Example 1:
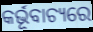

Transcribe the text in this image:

କର୍ଭୂବାଚ୍ୟରେ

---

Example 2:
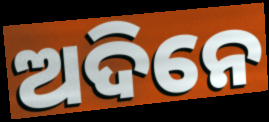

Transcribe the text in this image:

ଅଦିନେ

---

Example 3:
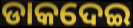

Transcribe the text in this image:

ଡାକଦେଇ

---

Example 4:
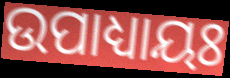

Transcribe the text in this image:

ଉପାଧ୍ୟାୟଃ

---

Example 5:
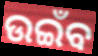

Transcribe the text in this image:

ଉଇଁବ